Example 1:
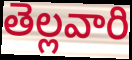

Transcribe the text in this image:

తెల్లవారి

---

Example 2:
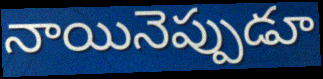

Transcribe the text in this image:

నాయినెప్పుడూ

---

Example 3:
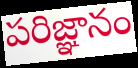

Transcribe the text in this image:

పరిజ్ఞానం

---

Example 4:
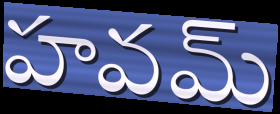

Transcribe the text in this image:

హవమ్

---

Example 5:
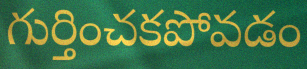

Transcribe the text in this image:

గుర్తించకపోవడం